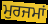
ਮੁਰਜਮਾਂ